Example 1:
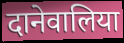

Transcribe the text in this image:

दानेवालिया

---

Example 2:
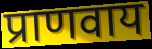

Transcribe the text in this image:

प्राणवाय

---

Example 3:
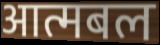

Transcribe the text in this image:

आत्मबल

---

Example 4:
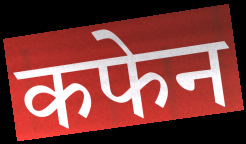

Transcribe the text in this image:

कफेन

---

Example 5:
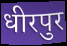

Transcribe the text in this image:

धीरपुर